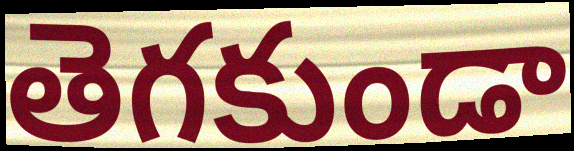
తెగకుండా